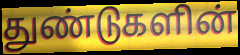
துண்டுகளின்